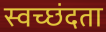
स्वच्छंदता